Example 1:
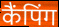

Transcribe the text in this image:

कैंपिंग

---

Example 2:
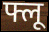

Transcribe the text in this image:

फ्लू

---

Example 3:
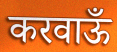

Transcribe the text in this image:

करवाऊँ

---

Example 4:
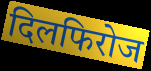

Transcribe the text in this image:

दिलफिरोज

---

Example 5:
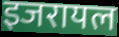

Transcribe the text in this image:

इजरायल